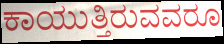
ಕಾಯುತ್ತಿರುವವರೂ